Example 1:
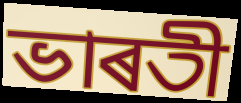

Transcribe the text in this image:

ভাৰতী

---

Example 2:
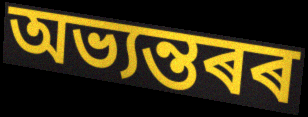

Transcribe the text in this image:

অভ্যন্তৰৰ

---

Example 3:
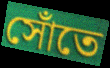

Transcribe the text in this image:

সোঁতে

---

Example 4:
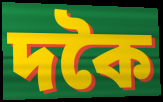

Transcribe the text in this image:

দকৈ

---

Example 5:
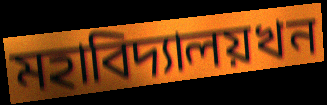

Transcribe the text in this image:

মহাবিদ্যালয়খন